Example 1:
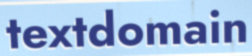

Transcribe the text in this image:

textdomain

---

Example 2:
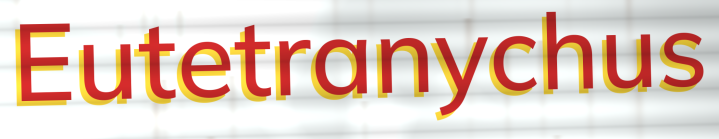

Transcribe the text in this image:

Eutetranychus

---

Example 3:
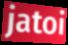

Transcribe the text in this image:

jatoi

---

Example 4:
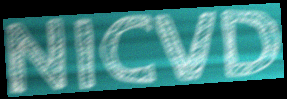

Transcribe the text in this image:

NICVD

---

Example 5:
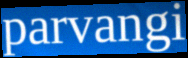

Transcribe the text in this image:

parvangi